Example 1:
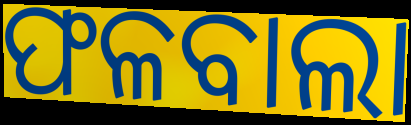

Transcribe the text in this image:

ଫଳବାଲା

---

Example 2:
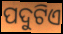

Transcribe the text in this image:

ପଦୁଟିଏ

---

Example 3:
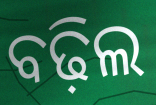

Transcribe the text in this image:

ବଢ଼ିଲ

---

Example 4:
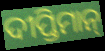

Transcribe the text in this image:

ଦୀପ୍ତିମାନ୍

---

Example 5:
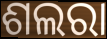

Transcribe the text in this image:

ଶଲରା